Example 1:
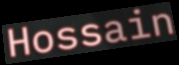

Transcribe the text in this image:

Hossain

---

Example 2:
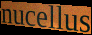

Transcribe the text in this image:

nucellus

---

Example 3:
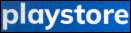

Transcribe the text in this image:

playstore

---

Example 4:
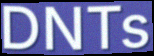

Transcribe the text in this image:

DNTs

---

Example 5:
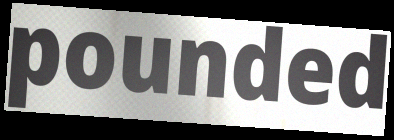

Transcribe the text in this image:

pounded